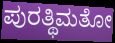
ಪುರತ್ಥಿಮತೋ